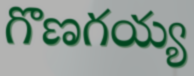
గొణగయ్య